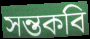
সন্তকবি